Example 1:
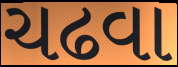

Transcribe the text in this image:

ચઢવા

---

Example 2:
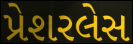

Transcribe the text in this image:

પ્રેશરલેસ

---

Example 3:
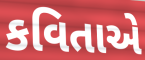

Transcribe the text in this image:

કવિતાએ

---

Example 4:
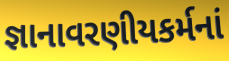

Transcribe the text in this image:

જ્ઞાનાવરણીયકર્મનાં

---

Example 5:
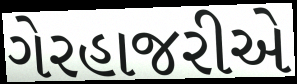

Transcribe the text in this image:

ગેરહાજરીએ